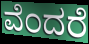
ವೆಂದರೆ